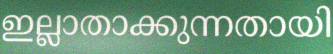
ഇല്ലാതാക്കുന്നതായി